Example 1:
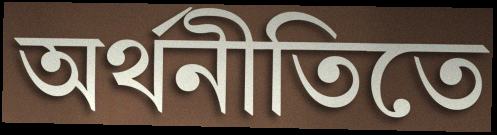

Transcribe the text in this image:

অর্থনীতিতে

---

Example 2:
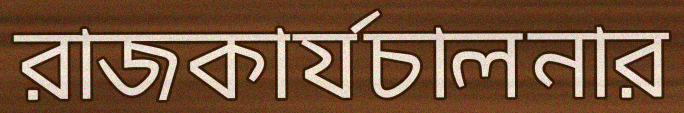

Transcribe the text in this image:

রাজকার্যচালনার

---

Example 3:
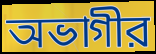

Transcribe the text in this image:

অভাগীর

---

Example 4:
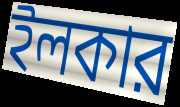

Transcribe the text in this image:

ইলকার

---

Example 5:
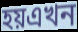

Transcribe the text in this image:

হয়এখন